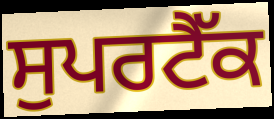
ਸੁਪਰਟੈੱਕ